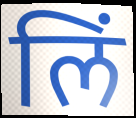
लिं